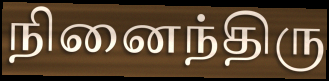
நினைந்திரு